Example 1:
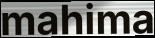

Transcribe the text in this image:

mahima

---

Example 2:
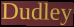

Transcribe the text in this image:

Dudley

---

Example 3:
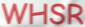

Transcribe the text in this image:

WHSR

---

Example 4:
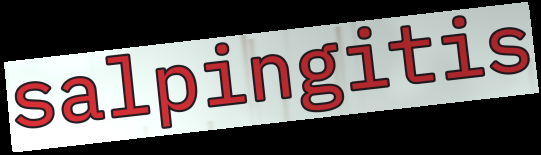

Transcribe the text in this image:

salpingitis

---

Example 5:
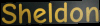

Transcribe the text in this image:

Sheldon